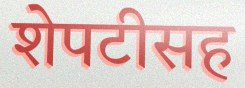
शेपटीसह